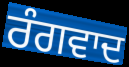
ਰੰਗਵਾਦ